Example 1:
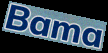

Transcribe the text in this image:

Bama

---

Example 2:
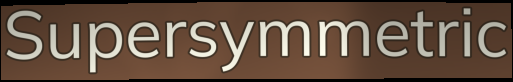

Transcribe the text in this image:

Supersymmetric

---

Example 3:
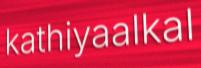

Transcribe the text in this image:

kathiyaalkal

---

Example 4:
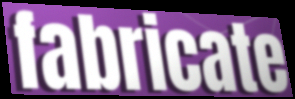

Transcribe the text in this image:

fabricate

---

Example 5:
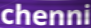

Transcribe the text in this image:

chenni